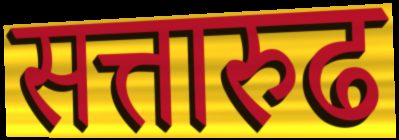
सत्तारुढ